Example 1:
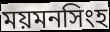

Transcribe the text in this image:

ময়মনসিংহ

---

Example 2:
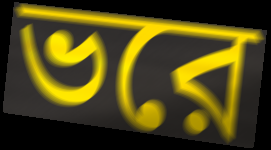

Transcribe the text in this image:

ভরে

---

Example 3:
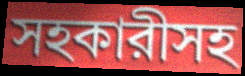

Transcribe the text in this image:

সহকারীসহ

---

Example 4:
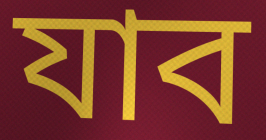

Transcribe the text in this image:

যাব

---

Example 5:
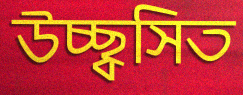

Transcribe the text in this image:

উচ্ছ্বসিত